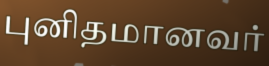
புனிதமானவர்